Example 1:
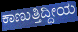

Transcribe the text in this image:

ಕಾಣುತ್ತಿದ್ದೀಯ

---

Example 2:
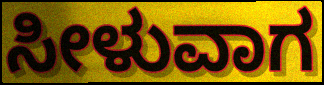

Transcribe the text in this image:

ಸೀಳುವಾಗ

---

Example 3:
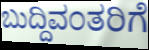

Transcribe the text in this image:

ಬುದ್ದಿವಂತರಿಗೆ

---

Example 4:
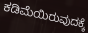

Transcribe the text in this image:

ಕಡಿಮೆಯಿರುವುದಕ್ಕೆ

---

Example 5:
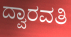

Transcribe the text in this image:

ದ್ವಾರವತಿ